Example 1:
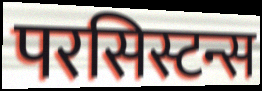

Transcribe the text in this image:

परसिस्टन्स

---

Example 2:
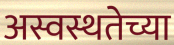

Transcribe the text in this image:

अस्वस्थतेच्या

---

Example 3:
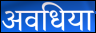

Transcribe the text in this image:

अवधिया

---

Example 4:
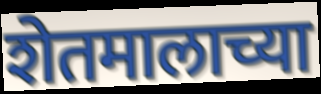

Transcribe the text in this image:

शेतमालाच्या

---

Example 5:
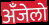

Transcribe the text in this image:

अँजेलो